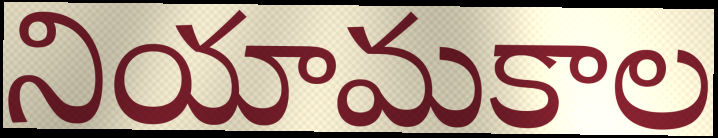
నియామకాల